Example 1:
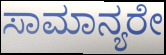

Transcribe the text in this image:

ಸಾಮಾನ್ಯರೇ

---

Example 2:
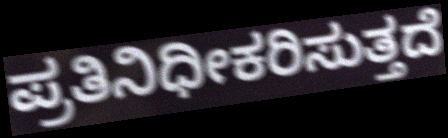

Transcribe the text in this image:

ಪ್ರತಿನಿಧೀಕರಿಸುತ್ತದೆ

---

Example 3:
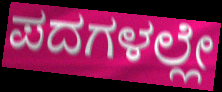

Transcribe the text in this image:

ಪದಗಳಲ್ಲೇ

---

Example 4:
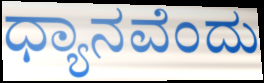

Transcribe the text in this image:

ಧ್ಯಾನವೆಂದು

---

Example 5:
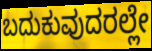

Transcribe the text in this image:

ಬದುಕುವುದರಲ್ಲೇ